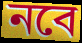
নবে